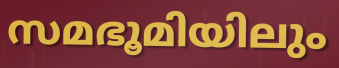
സമഭൂമിയിലും